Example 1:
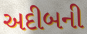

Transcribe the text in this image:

અદીબની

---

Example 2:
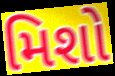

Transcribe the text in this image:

મિશો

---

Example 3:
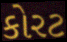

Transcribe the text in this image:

કોરટ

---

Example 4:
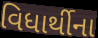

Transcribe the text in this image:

વિધાર્થીના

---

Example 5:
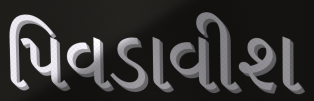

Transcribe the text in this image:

પિવડાવીશ